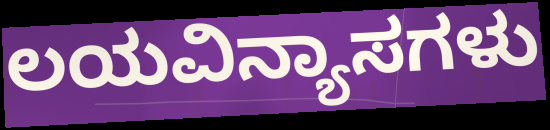
ಲಯವಿನ್ಯಾಸಗಳು